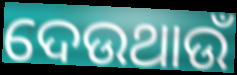
ଦେଉଥାଉଁ